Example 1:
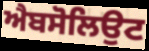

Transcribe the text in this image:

ਐਬਸੋਲਿਉਟ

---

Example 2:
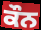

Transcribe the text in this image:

ਕੌਨ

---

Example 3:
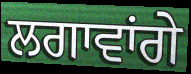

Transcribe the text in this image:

ਲਗਾਵਾਂਗੇ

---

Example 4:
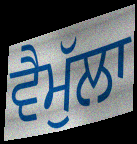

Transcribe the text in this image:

ਵੈਮੁੱਲਾ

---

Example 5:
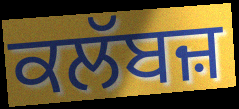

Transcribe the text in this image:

ਕਲੱਬਜ਼